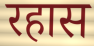
रहास